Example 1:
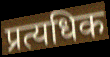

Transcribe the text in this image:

प्रत्यधिक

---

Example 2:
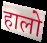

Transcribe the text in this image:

हालो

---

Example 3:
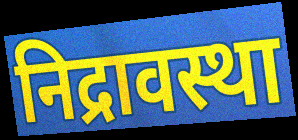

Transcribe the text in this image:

निद्रावस्था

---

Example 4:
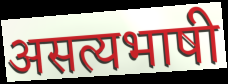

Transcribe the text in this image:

असत्यभाषी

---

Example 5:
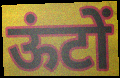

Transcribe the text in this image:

ऊंटों